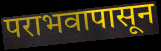
पराभवापासून